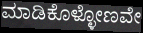
ಮಾಡಿಕೊಳ್ಳೋಣವೇ